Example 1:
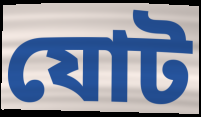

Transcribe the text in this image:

যোট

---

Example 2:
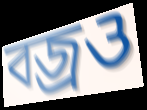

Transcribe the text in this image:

বজ্রও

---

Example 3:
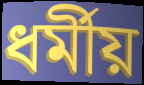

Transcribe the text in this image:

ধর্মীয়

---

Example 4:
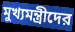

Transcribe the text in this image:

মুখ্যমন্ত্রীদের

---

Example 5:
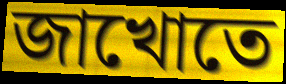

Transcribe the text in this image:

জাখোতে